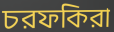
চরফকিরা